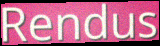
Rendus